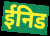
ईनिड